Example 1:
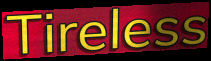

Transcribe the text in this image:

Tireless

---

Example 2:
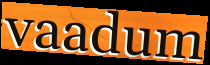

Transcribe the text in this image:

vaadum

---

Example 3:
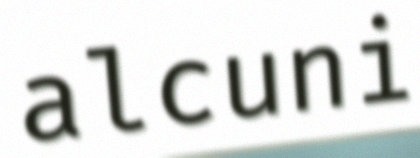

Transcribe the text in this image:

alcuni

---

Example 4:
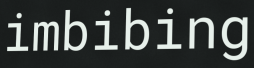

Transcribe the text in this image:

imbibing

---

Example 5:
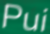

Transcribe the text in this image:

Pui